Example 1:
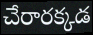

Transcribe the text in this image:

చేరారక్కడ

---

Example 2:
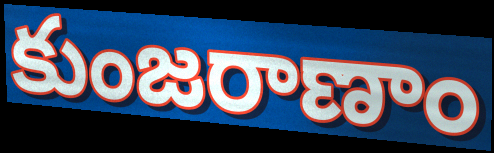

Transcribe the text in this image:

కుంజరాణాం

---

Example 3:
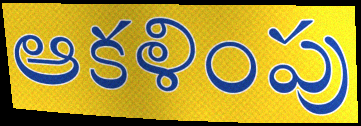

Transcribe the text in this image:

ఆకళింపు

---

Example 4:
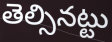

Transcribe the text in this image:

తెల్సినట్టు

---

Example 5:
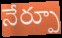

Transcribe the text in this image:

నేర్పూ